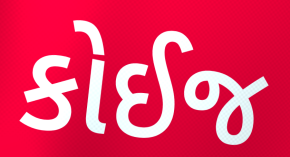
કોઈજ